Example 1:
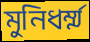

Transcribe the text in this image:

মুনিধর্ম্ম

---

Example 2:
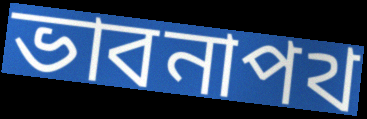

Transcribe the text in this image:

ভাবনাপথ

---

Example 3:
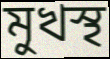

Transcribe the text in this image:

মুখস্থ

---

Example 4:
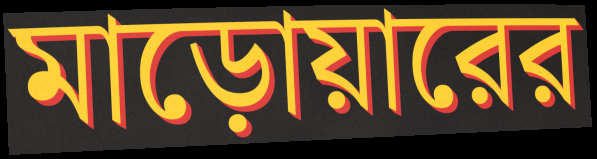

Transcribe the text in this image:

মাড়োয়ারের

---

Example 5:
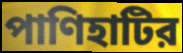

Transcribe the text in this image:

পাণিহাটির